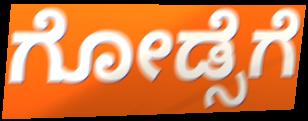
ಗೋಡ್ಸೆಗೆ